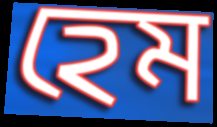
হেম